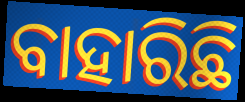
ବାହାରିଛି